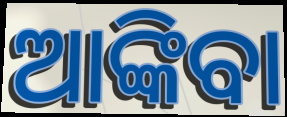
ଆଙ୍କିବା